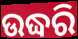
ଉଦ୍ଧରି